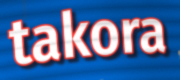
takora